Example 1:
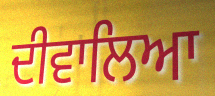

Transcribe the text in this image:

ਦੀਵਾਲਿਆ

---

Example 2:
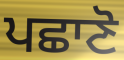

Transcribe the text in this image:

ਪਛਾਣੋ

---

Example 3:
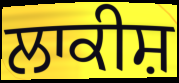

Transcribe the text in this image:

ਲਾਕੀਸ਼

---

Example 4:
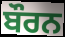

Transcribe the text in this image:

ਬੌਰਨ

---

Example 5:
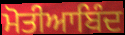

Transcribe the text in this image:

ਮੋਤੀਆਬਿੰਦ